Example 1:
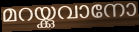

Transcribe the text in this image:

മറയ്ക്കുവാനോ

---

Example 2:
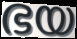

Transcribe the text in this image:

ഭയ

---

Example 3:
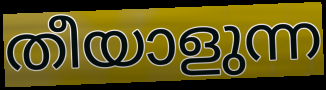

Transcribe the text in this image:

തീയാളുന്ന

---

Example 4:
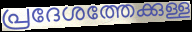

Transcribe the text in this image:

പ്രദേശത്തേക്കുള്ള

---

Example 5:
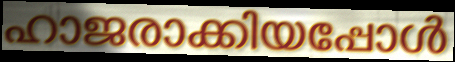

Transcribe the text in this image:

ഹാജരാക്കിയപ്പോൾ